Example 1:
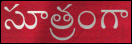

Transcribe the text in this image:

సూత్రంగా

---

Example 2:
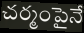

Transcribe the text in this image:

చర్మంపైనే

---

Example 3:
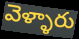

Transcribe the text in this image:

వెళ్ళారు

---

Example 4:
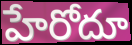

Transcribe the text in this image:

హేరోదూ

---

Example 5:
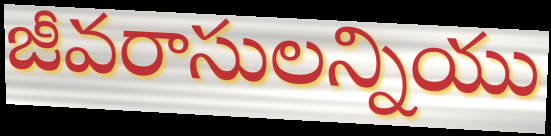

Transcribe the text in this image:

జీవరాసులన్నియు